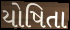
યોષિતા